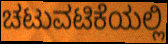
ಚಟುವಟಿಕೆಯಲ್ಲಿ